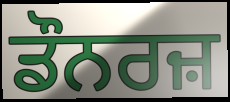
ਡੌਨਰਜ਼